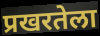
प्रखरतेला